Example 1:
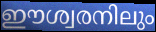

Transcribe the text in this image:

ഈശ്വരനിലും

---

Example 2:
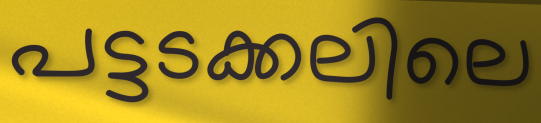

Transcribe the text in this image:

പട്ടടക്കലിലെ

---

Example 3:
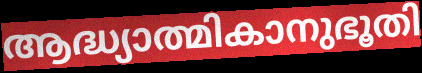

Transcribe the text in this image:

ആദ്ധ്യാത്മികാനുഭൂതി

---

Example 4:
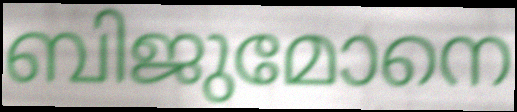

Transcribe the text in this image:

ബിജുമോനെ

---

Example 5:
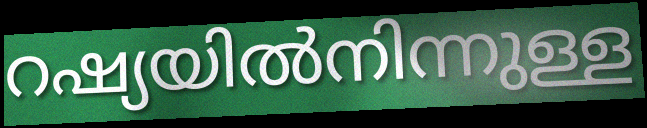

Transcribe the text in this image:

റഷ്യയിൽനിന്നുള്ള